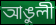
আঙুলী